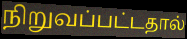
நிறுவப்பட்டதால்